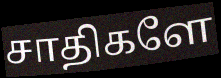
சாதிகளே